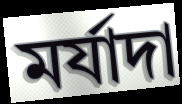
মর্যাদা